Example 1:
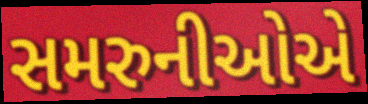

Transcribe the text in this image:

સમરુનીઓએ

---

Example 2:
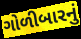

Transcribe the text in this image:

ગોળીબારનું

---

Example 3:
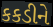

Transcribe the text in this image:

કકડીને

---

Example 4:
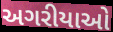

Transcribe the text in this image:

અગરીયાઓ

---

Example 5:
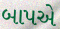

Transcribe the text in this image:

બાપએ